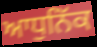
ਆਧੁਨਿੱਕ